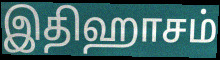
இதிஹாசம்